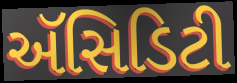
ઍસિડિટી